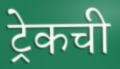
ट्रेकची